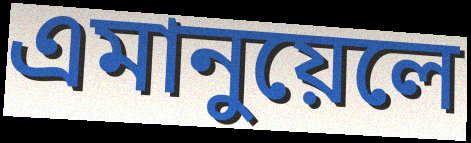
এমানুয়েলে